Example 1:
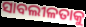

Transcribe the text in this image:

ସାବଲୀଳତାକୁ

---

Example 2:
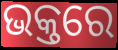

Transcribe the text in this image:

ଭକ୍ତରେ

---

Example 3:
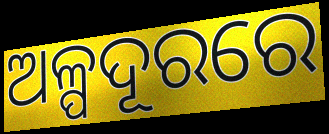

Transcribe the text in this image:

ଅଳ୍ପଦୂରରେ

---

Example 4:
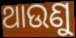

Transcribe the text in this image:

ଥାଉଣୁ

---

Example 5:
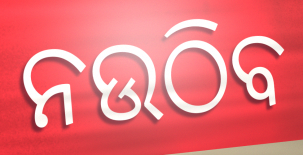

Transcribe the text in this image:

ନଉଠିବ